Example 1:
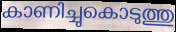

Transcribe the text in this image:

കാണിച്ചുകൊടുത്തു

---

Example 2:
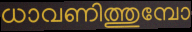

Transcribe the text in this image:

ധാവണിത്തുമ്പോ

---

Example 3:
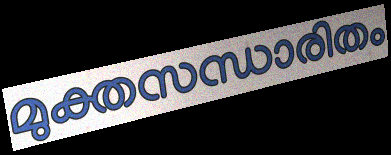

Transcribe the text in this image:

മുക്തസന്ധാരിതം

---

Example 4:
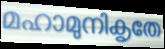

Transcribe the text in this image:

മഹാമുനികൃതേ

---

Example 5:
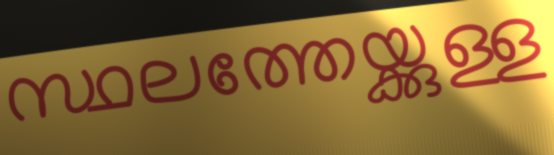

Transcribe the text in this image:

സ്ഥലത്തേയ്ക്കുള്ള